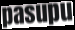
pasupu